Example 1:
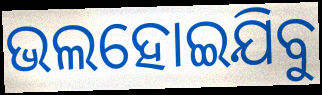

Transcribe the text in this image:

ଭଲହୋଇଯିବୁ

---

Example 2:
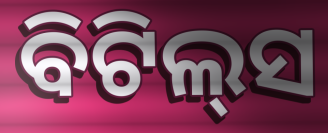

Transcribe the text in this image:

ବିଟିଲ୍‌ସ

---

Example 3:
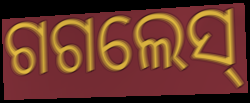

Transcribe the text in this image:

ଗଗଲେସ୍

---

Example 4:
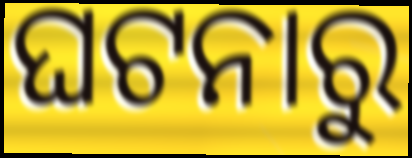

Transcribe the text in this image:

ଘଟନାରୁ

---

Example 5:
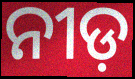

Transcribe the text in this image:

ନୀଡ଼